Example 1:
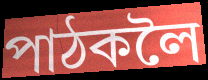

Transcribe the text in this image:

পাঠকলৈ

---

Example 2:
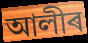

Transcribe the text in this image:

আলীৰ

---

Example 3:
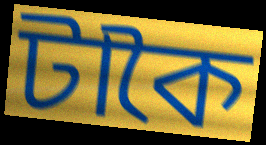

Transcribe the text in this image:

টাকৈ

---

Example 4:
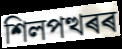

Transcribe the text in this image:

শিলপত্থৰৰ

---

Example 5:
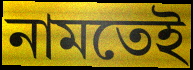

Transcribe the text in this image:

নামতেই